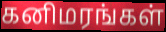
கனிமரங்கள்